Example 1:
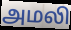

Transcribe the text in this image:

அமலி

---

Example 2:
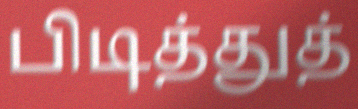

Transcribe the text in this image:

பிடித்துத்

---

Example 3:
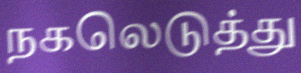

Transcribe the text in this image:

நகலெடுத்து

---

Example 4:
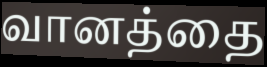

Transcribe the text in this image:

வானத்தை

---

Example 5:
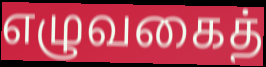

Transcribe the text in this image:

எழுவகைத்